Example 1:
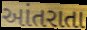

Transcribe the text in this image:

આંતરાતા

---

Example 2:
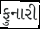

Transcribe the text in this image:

ફુનારી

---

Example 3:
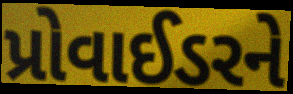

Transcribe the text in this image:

પ્રોવાઈડરને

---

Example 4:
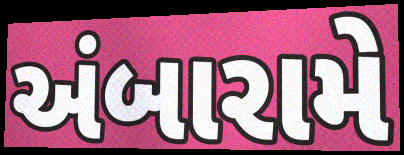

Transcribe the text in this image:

અંબારામે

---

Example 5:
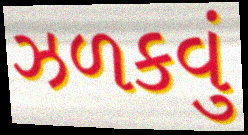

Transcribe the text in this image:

ઝળકવું